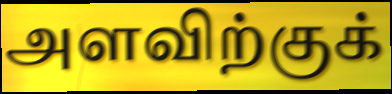
அளவிற்குக்